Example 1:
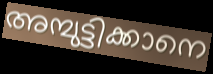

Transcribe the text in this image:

അമ്പുട്ടിക്കാനെ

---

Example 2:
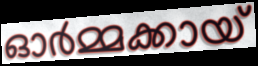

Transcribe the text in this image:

ഓർമ്മക്കായ്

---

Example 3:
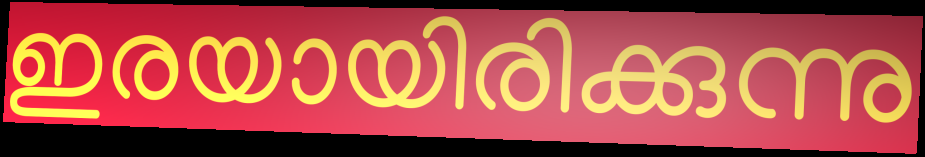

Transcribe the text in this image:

ഇരയായിരിക്കുന്നു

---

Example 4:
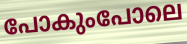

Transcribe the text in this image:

പോകുംപോലെ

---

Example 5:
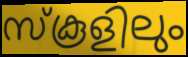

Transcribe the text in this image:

സ്കൂളിലും